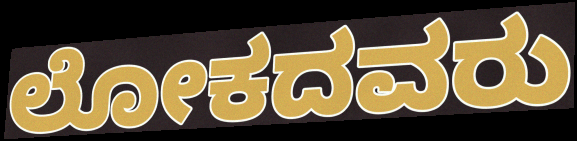
ಲೋಕದವರು